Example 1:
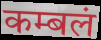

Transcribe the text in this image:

कम्बलं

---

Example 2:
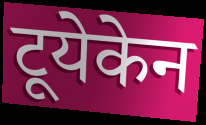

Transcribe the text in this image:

टूयेकेन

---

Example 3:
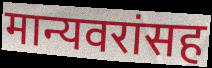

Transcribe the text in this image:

मान्यवरांसह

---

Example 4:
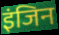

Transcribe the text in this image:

इंजिन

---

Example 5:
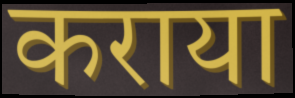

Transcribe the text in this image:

कराया